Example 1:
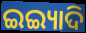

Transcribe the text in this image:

ଇଇ୍ୟାଦି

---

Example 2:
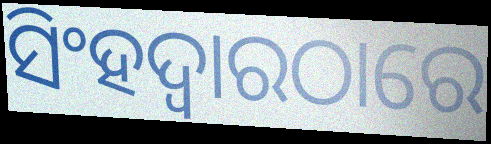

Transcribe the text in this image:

ସିଂହଦ୍ୱାରଠାରେ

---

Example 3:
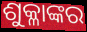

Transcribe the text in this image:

ଶୁକ୍ଳାଙ୍କର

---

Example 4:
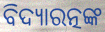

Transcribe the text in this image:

ବିଦ୍ୟାରତ୍ନଙ୍କ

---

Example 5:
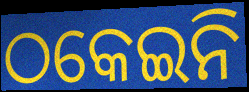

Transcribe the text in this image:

ଠକେଇନି